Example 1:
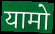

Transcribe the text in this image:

यामो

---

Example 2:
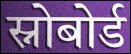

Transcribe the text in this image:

स्नोबोर्ड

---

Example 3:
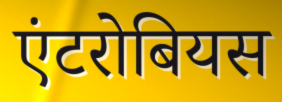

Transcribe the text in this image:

एंटरोबियस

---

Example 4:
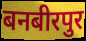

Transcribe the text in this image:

बनबीरपुर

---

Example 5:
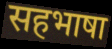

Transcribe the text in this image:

सहभाषा